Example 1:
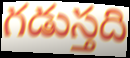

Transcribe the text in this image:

గడుస్తది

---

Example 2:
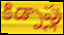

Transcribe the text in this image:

కిడ్నాప్లు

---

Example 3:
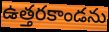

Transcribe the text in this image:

ఉత్తరకాండను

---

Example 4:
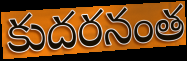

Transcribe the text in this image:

కుదరనంత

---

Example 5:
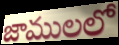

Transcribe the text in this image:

జాములలో